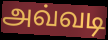
அவ்வடி